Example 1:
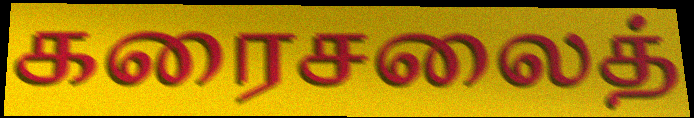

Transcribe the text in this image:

கரைசலைத்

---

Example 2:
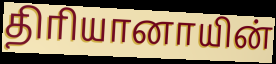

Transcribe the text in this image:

திரியானாயின்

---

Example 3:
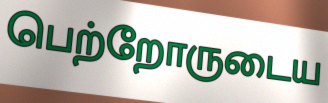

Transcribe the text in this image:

பெற்றோருடைய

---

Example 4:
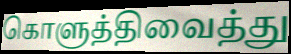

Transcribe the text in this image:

கொளுத்திவைத்து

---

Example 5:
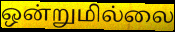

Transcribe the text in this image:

ஒன்றுமில்லை